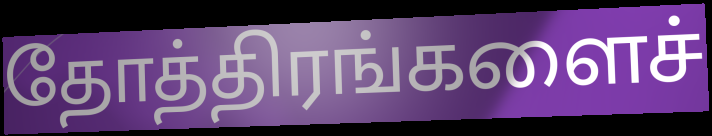
தோத்திரங்களைச்